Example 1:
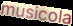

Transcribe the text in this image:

musicola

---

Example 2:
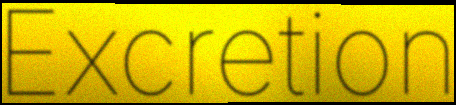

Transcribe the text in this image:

Excretion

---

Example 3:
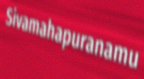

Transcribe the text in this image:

Sivamahapuranamu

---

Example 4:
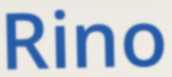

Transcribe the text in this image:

Rino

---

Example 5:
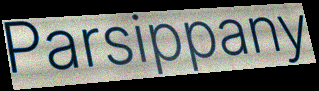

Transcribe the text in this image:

Parsippany